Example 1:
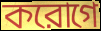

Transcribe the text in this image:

করোগে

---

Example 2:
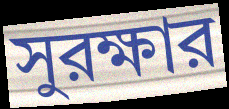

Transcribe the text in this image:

সুরক্ষার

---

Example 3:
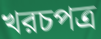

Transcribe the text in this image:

খরচপত্র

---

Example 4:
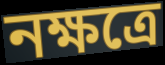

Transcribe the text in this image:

নক্ষত্রে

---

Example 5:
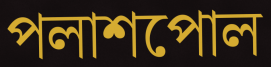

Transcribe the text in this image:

পলাশপোল